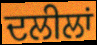
ਦਲੀਲਾਂ